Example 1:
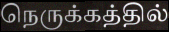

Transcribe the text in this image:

நெருக்கத்தில்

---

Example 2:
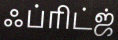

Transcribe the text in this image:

ஃப்ரிட்ஜ்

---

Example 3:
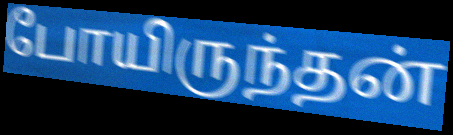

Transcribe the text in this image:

போயிருந்தன்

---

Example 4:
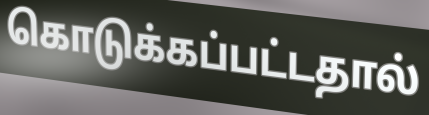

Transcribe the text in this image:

கொடுக்கப்பட்டதால்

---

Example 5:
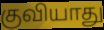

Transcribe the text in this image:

குவியாது